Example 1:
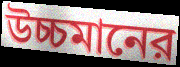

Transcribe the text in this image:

উচ্চমানের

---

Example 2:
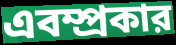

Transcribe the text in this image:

এবম্প্রকার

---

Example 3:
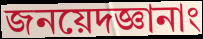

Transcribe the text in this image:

জনয়েদজ্ঞানাং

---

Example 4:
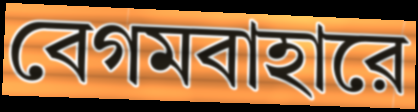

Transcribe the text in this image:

বেগমবাহারে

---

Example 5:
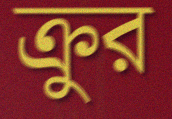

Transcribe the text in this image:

ক্রুর